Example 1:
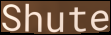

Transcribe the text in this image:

Shute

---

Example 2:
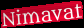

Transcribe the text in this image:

Nimavat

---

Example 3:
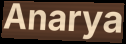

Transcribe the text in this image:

Anarya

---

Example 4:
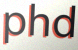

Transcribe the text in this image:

phd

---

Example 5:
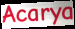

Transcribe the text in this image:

Acarya